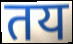
तय